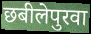
छबीलेपुरवा